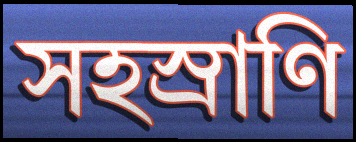
সহস্রাণি